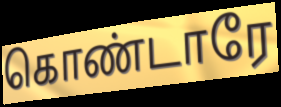
கொண்டாரே